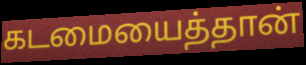
கடமையைத்தான்